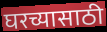
घरच्यासाठी